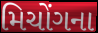
મિચોંગના